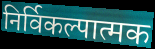
निर्विकल्पात्मक